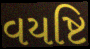
વયષ્ટિ